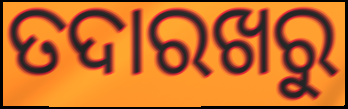
ତଦାରଖରୁ